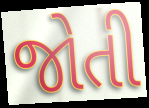
જોતી